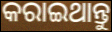
କରାଇଥାନ୍ତୁ